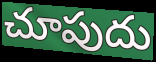
చూపుదు